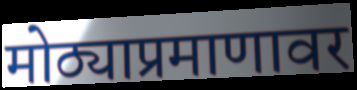
मोठ्याप्रमाणावर